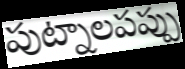
పుట్నాలపప్పు